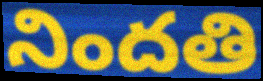
నిందతి